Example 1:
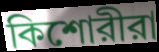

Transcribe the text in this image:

কিশোরীরা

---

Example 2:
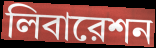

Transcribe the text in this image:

লিবারেশন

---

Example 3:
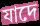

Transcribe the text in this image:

যাদে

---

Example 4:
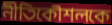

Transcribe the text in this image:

নীতিকৌশলকে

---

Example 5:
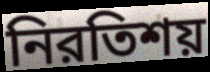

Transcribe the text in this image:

নিরতিশয়